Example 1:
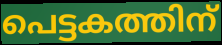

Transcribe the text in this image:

പെട്ടകത്തിന്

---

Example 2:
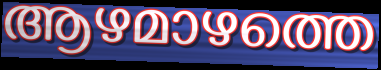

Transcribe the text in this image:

ആഴമാഴത്തെ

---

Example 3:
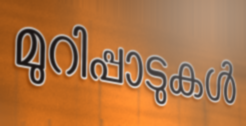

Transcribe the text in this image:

മുറിപ്പാടുകൾ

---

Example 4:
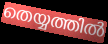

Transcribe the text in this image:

തെയ്യത്തിൽ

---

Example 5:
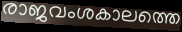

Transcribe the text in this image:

രാജവംശകാലത്തെ